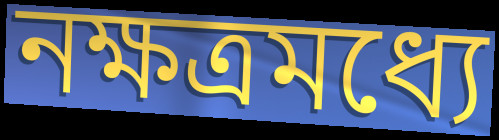
নক্ষত্রমধ্যে